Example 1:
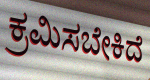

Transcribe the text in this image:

ಕ್ರಮಿಸಬೇಕಿದೆ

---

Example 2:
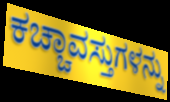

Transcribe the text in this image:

ಕಚ್ಚಾವಸ್ತುಗಳನ್ನು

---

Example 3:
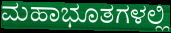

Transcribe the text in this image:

ಮಹಾಭೂತಗಳಲ್ಲಿ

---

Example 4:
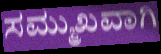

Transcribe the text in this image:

ಸಮ್ಮುಖವಾಗಿ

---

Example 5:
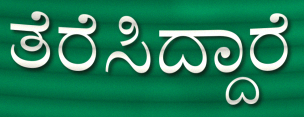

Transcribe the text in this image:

ತೆರೆಸಿದ್ದಾರೆ